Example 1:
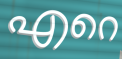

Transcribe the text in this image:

എറെ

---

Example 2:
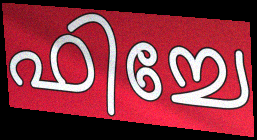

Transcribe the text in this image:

ഫിച്ചേ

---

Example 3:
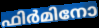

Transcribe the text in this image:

ഫിർമിനോ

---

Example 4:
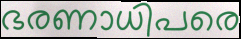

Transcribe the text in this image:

ഭരണാധിപരെ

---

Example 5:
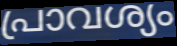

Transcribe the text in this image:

പ്രാവശ്യം